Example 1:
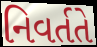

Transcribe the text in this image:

નિવર્તતે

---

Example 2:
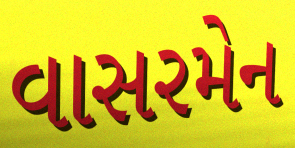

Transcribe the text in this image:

વાસરમેન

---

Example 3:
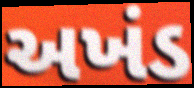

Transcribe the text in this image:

અખંડ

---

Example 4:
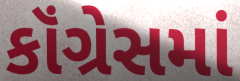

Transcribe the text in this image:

કૉંગ્રેસમાં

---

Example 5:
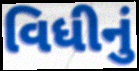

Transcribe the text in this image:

વિધીનું